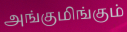
அங்குமிங்கும்